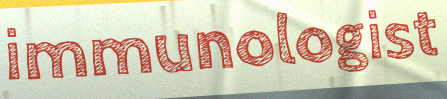
immunologist